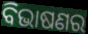
ବିଭାଷଣର